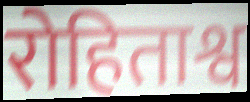
रोहिताश्व